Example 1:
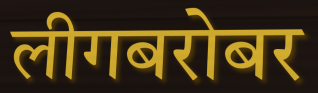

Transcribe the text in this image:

लीगबरोबर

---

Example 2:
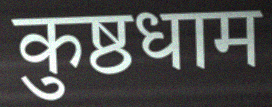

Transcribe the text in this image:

कुष्ठधाम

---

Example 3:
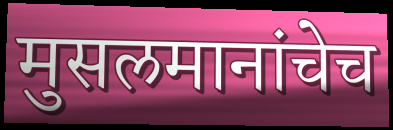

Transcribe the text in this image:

मुसलमानांचेच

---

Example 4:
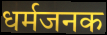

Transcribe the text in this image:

धर्मजनक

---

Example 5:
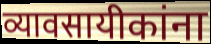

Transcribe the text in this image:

व्यावसायीकांना